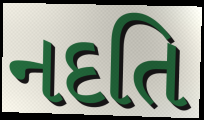
નદતિ